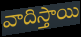
వాదిస్తాయి